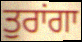
ਤੁਰਾਂਗਾ